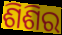
ଶିଶିର